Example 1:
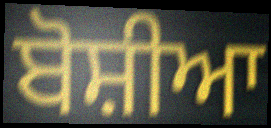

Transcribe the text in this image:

ਬੋਸ਼ੀਆ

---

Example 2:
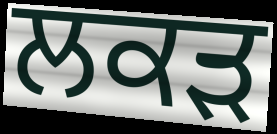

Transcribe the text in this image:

ਲਕੜ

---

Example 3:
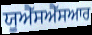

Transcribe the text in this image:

ਯੂਐੱਸਐੱਸਆਰ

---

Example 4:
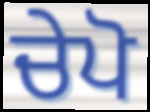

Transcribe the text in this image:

ਚੇਪੋ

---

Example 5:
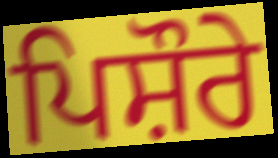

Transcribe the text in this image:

ਪਿਸ਼ੌਰੇ